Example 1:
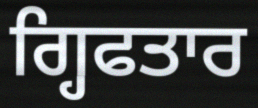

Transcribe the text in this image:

ਗ੍ਹਿਫਤਾਰ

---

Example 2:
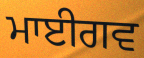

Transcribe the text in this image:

ਮਾਈਗਵ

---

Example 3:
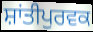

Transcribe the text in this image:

ਸ਼ਾਂਤੀਪੁਰਵਕ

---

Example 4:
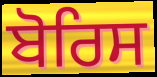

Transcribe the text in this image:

ਬੋਰਿਸ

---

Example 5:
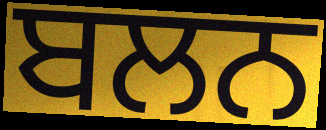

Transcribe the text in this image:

ਬਲਨ